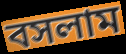
বসলাম